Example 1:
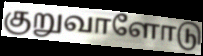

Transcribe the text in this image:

குறுவாளோடு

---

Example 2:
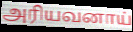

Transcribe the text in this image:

அரியவனாய்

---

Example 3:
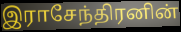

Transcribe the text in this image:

இராசேந்திரனின்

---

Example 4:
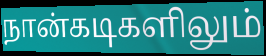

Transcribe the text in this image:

நான்கடிகளிலும்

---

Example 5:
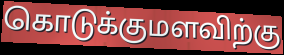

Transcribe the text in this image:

கொடுக்குமளவிற்கு